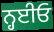
ਨ੍ਹਈਓ